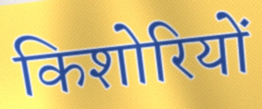
किशोरियों